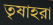
তৃষাহরা